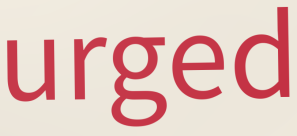
urged